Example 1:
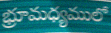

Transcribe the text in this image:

భ్రూమధ్యములో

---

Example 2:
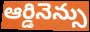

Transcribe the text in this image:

ఆర్డినెన్సు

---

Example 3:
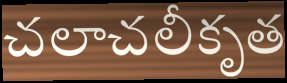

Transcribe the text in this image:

చలాచలీకృత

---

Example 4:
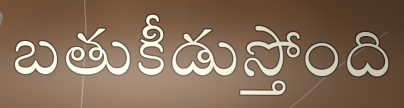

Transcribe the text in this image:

బతుకీడుస్తోంది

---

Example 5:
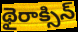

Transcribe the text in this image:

థైరాక్సిన్